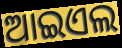
ଆଇଏଲ